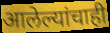
आलेल्यांचाही